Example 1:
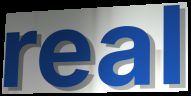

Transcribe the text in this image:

real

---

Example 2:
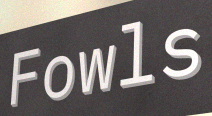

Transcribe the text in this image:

Fowls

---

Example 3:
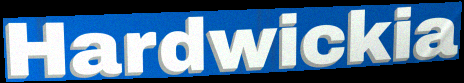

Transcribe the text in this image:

Hardwickia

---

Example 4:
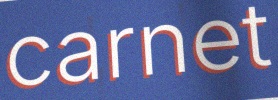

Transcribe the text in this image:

carnet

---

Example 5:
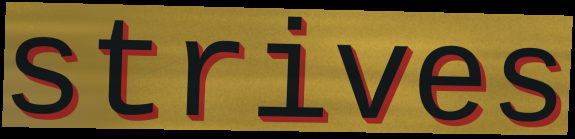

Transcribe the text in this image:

strives